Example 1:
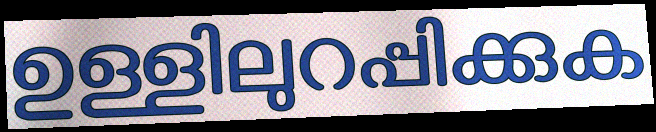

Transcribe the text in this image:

ഉള്ളിലുറപ്പിക്കുക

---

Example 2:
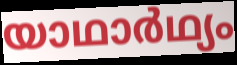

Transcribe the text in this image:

യാഥാർഥ്യം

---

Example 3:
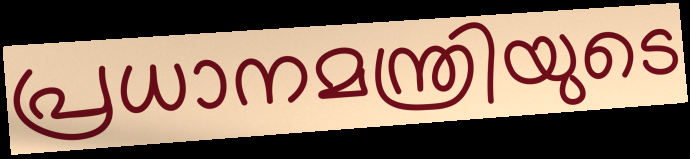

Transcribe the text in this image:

പ്രധാനമന്ത്രിയുടെ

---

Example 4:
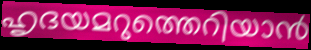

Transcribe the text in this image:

ഹൃദയമറുത്തെറിയാൻ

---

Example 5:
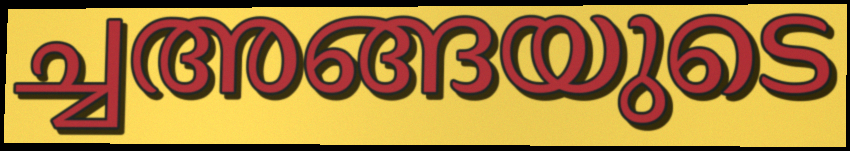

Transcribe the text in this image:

ച്ചഅങ്ങയുടെ